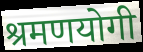
श्रमणयोगी